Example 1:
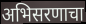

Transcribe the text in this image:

अभिसरणाचा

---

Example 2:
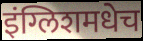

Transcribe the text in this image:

इंग्लिशमधेच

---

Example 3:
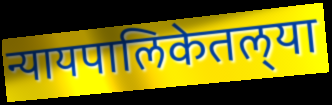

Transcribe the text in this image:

न्यायपालिकेतल्या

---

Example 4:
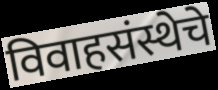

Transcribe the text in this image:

विवाहसंस्थेचे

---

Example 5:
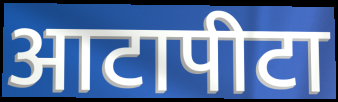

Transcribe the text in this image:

आटापीटा